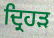
ਦ੍ਰਿਹੜ